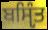
ਬਸੵਿੰਤ